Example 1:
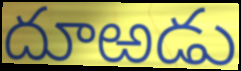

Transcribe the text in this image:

దూఱడు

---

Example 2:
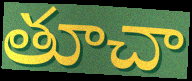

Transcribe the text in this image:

తూచా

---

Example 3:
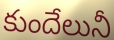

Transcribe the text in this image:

కుందేలునీ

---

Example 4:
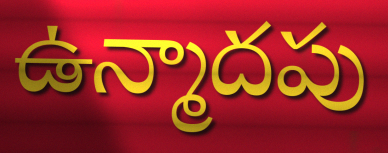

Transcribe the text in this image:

ఉన్మాదపు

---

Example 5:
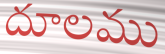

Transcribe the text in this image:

దూలము